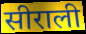
सीराली